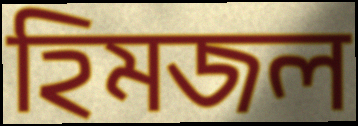
হিমজল